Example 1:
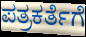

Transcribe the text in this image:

ಪತ್ರಕರ್ತೆಗೆ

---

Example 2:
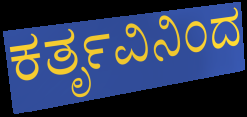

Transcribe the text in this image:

ಕರ್ತೃವಿನಿಂದ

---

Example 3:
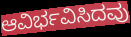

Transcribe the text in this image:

ಆವಿರ್ಭವಿಸಿದವು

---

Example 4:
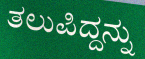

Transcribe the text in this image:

ತಲುಪಿದ್ದನ್ನು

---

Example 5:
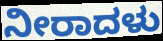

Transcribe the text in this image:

ನೀರಾದಳು